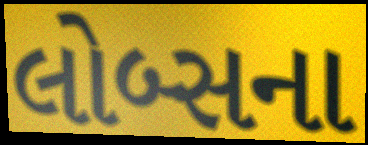
લોબ્સના